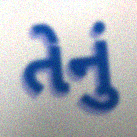
તેનું